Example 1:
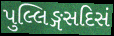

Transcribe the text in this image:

પુલ્લિઙ્ગસદિસં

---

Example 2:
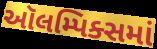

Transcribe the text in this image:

ઑલમ્પિક્સમાં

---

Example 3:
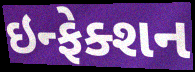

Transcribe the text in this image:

ઇન્ફેક્શન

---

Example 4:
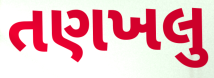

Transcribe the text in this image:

તણખલુ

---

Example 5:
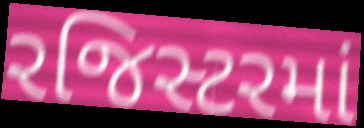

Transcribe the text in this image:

રજિસ્ટરમાં